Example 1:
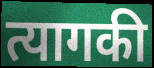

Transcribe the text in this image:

त्यागकी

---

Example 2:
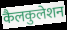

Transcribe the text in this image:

कैलकुलेशन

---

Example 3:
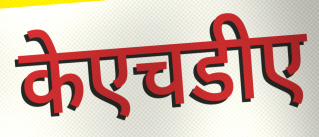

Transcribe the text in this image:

केएचडीए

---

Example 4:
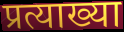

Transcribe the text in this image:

प्रत्याख्या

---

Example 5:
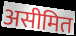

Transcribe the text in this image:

असीमित